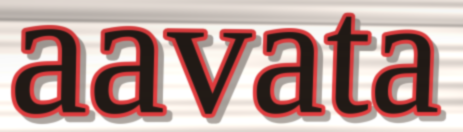
aavata